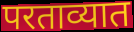
परताव्यात